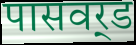
पासवर्ड